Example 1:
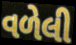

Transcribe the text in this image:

વળેલી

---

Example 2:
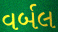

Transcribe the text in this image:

વર્બલ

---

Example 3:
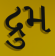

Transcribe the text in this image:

દ્રુમ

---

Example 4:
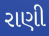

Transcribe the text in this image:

રાણી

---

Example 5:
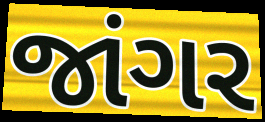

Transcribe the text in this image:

જાંગર